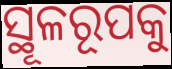
ସ୍ଥୂଳରୂପକୁ